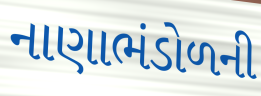
નાણાભંડોળની